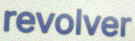
revolver